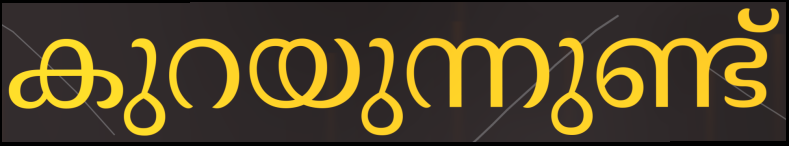
കുറയുന്നുണ്ട്